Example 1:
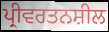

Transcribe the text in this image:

ਪ੍ਰੀਵਰਤਨਸ਼ੀਲ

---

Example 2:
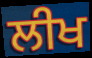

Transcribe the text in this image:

ਲੀਖ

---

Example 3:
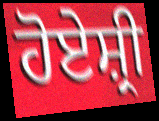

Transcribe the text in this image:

ਹੋਏਸ਼੍ਰੀ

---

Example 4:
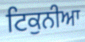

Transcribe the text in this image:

ਟਿਕੁਨੀਆ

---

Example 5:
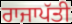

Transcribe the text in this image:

ਰਾਜਾਪੱਤੀ